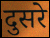
दुसरे